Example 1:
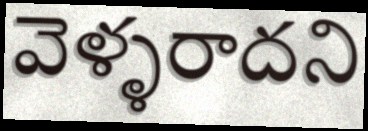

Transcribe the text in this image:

వెళ్ళరాదని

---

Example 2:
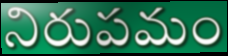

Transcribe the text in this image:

నిరుపమం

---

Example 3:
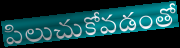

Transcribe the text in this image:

పిలుచుకోవడంతో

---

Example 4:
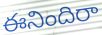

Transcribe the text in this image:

ఈనిందిరా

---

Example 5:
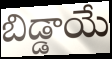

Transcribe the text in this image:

బిడ్డాయే